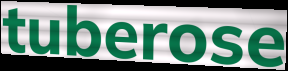
tuberose